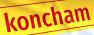
koncham